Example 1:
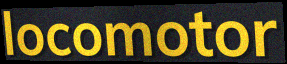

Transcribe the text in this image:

locomotor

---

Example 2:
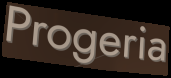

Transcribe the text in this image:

Progeria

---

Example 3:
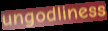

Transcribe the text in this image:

ungodliness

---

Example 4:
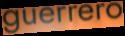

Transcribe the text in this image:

guerrero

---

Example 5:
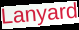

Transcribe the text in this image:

Lanyard